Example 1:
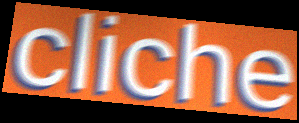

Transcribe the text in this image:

cliche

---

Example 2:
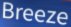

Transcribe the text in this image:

Breeze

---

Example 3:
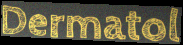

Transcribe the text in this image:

Dermatol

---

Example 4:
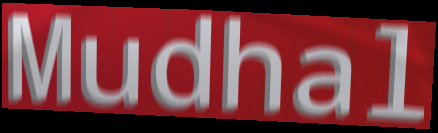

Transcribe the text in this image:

Mudhal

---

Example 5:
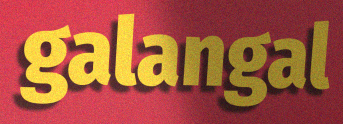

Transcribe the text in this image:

galangal